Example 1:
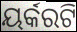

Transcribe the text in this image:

ୟର୍କରଟି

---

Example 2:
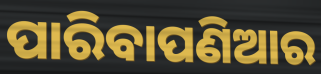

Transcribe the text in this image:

ପାରିବାପଣିଆର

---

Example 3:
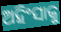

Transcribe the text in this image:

ଅହିଂସାକୁ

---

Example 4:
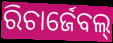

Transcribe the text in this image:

ରିଚାର୍ଜେବଲ୍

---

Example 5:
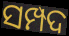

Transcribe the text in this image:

ସମ୍ପଦ